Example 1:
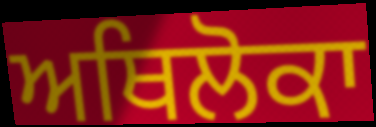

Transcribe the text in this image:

ਅਥਿਲੋਕਾ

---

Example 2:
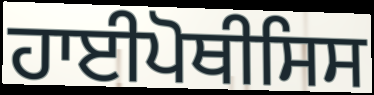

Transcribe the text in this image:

ਹਾਈਪੋਥੀਸਿਸ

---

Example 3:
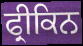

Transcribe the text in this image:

ਫ੍ਰੀਕਿਨ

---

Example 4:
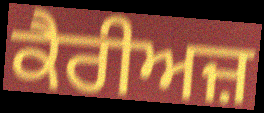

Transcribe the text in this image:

ਕੈਰੀਅਜ਼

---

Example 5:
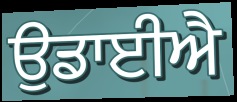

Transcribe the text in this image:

ਉਡਾਈਐ